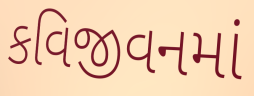
કવિજીવનમાં